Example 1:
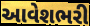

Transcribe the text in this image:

આવેશભરી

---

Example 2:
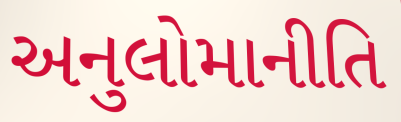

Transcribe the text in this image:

અનુલોમાનીતિ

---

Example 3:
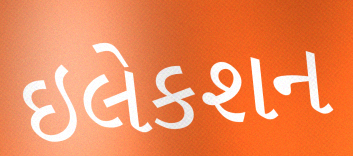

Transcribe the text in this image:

ઇલેકશન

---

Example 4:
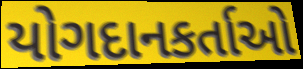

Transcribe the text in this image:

યોગદાનકર્તાઓ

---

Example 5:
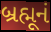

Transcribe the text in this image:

બ્રહ્મૂનં